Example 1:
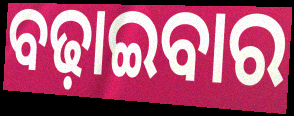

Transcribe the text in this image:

ବଢ଼ାଇବାର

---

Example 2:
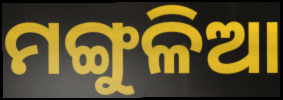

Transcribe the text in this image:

ମଙ୍ଗୁଳିଆ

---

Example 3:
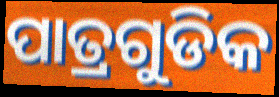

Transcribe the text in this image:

ପାତ୍ରଗୁଡିକ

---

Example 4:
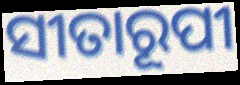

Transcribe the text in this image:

ସୀତାରୂପୀ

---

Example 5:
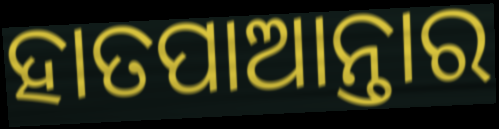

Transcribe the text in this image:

ହାତପାଆନ୍ତାର